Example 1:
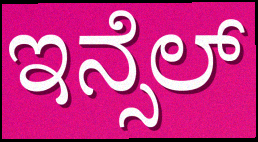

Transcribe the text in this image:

ಇನ್ಸೆಲ್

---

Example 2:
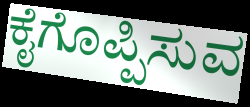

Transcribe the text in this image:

ಕೈಗೊಪ್ಪಿಸುವ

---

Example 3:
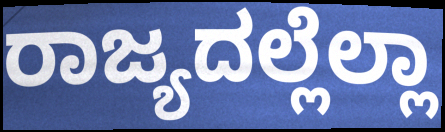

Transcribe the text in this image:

ರಾಜ್ಯದಲ್ಲೆಲ್ಲಾ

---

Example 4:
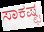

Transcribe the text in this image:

ಸಾಕಷ್ಟ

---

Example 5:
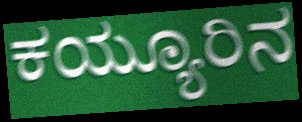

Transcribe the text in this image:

ಕಯ್ಯೂರಿನ